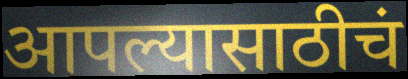
आपल्यासाठीचं